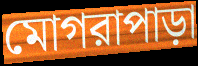
মোগরাপাড়া